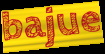
bajue